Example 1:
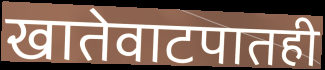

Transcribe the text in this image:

खातेवाटपातही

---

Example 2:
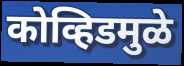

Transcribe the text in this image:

कोव्हिडमुळे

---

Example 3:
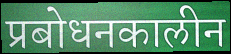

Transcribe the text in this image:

प्रबोधनकालीन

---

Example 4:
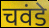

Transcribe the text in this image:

चवंडे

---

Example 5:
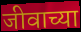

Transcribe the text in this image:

जीवाच्या